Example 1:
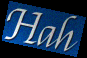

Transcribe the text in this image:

Hah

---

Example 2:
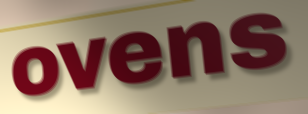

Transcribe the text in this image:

ovens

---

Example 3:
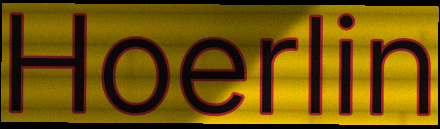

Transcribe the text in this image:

Hoerlin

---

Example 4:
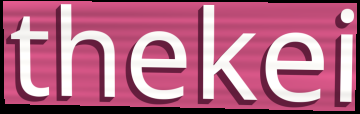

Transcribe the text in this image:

thekei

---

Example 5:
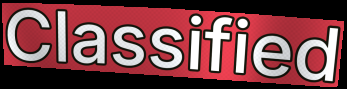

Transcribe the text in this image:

Classified